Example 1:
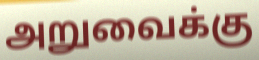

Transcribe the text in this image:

அறுவைக்கு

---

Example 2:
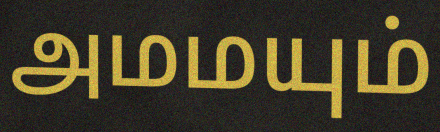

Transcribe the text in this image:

அமமயும்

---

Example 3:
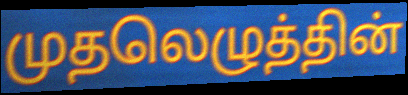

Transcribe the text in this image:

முதலெழுத்தின்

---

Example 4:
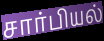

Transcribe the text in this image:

சார்பியல்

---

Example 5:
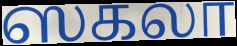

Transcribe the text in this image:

ஸகலா